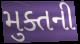
મુક્તની